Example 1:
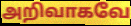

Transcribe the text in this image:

அறிவாகவே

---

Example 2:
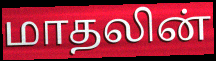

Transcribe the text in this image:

மாதலின்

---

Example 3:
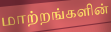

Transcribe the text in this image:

மாற்றங்களின்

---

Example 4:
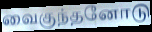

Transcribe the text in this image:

வைகுந்தனோடு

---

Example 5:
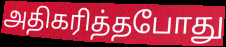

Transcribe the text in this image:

அதிகரித்தபோது